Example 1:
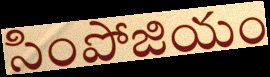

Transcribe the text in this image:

సింపోజియం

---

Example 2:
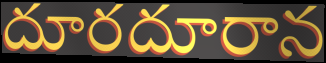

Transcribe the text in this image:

దూరదూరాన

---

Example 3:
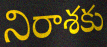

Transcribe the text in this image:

నిరాశకు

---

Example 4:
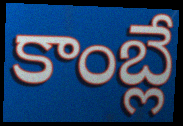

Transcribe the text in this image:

కాంబ్లే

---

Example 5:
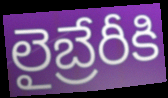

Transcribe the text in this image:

లైబ్రేరీకి